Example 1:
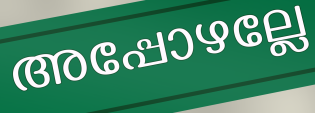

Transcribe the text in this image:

അപ്പോഴല്ലേ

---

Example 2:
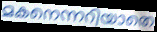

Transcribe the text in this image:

മകനെന്നറിയാതെ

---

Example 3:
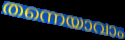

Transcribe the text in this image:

തന്നെയാവാം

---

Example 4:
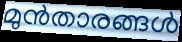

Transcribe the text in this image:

മുൻതാരങ്ങൾ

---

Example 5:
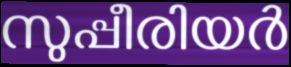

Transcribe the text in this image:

സുപ്പീരിയർ